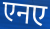
एनए